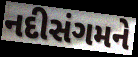
નદીસંગમને